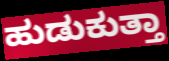
ಹುಡುಕುತ್ತಾ